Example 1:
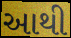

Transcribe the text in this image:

આથી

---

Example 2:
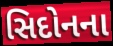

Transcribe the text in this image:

સિદોનના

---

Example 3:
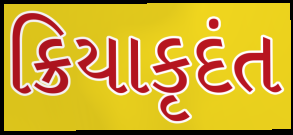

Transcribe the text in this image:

ક્રિયાકૃદંત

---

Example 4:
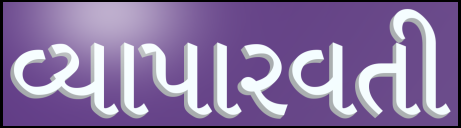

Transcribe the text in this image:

વ્યાપારવતી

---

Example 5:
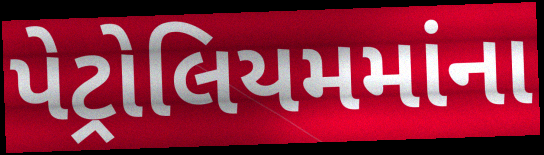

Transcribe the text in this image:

પેટ્રોલિયમમાંના